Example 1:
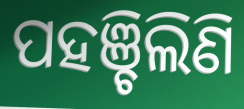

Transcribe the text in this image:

ପହଞ୍ଚିଲିଣି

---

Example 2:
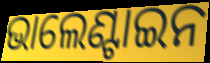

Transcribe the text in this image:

ଭାଲେଣ୍ଟାଇନ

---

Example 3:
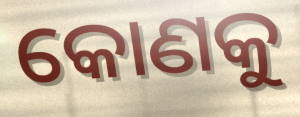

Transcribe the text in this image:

କୋଣକୁ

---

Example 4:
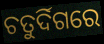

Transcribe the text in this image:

ଚତୁର୍ଦିଗରେ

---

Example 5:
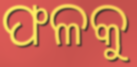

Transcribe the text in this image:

ଫଳକୁ